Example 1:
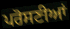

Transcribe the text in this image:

ਪਰੋਸਣੀਆਂ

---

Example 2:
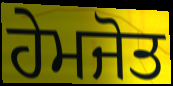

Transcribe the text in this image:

ਹੇਮਜੋਤ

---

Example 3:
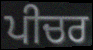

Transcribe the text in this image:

ਪੀਚਰ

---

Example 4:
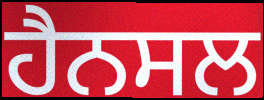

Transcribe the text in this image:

ਹੈਨਸਲ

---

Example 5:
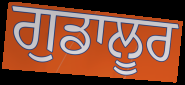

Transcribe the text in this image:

ਗੁਡਾਲੂਰ